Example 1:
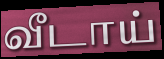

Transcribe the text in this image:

வீடாய்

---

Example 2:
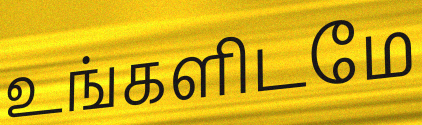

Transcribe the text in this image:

உங்களிடமே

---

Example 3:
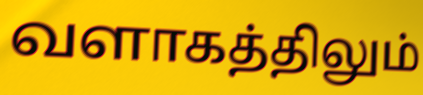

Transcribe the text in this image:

வளாகத்திலும்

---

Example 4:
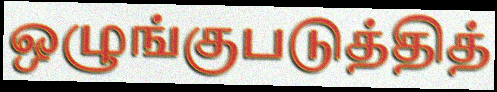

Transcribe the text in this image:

ஒழுங்குபடுத்தித்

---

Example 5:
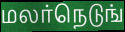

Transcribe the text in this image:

மலர்நெடுங்